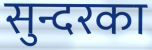
सुन्दरका